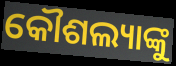
କୌଶଲ୍ୟାଙ୍କୁ